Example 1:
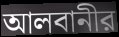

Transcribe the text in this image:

আলবানীর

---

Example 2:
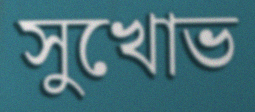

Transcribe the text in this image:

সুখোভ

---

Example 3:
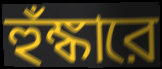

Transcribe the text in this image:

হুঁঙ্কারে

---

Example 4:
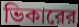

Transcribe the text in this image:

ভিকারের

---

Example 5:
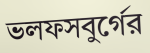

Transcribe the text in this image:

ভলফসবুর্গের